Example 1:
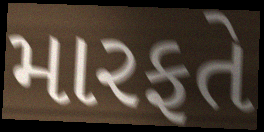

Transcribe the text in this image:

મારફતે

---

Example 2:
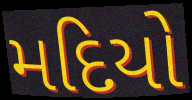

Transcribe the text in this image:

મદિયો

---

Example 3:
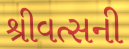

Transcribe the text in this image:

શ્રીવત્સની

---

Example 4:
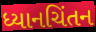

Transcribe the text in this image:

ધ્યાનચિંતન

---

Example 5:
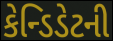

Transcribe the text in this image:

કેન્ડિડેટની